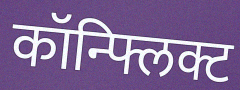
कॉन्फ्लिक्ट